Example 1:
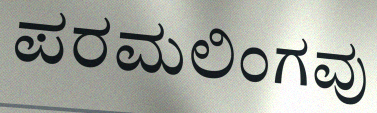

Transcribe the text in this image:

ಪರಮಲಿಂಗವು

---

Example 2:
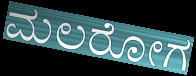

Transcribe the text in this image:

ಮಲರೋಗ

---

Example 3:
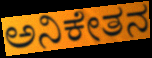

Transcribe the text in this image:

ಅನಿಕೇತನ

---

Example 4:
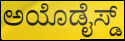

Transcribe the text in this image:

ಅಯೊಡೈಸ್ಡ್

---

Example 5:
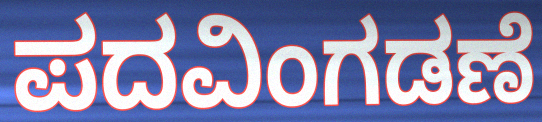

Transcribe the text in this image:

ಪದವಿಂಗಡಣೆ